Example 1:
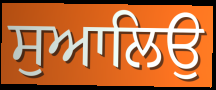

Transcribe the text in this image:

ਸੁਆਲਿਉ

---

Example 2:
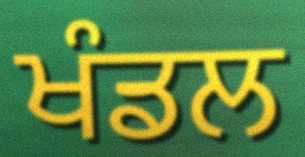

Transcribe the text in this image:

ਖੰਡਲ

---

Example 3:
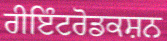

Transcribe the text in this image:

ਰੀਇੰਟਰੋਡਕਸ਼ਨ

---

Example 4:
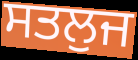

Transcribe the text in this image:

ਸਤਲੁਜ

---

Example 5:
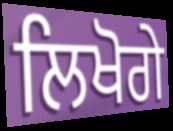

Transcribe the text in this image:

ਲਿਖੋਗੇ